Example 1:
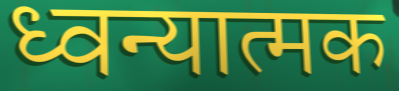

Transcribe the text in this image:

ध्वन्यात्मक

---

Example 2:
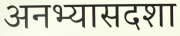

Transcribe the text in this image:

अनभ्यासदशा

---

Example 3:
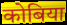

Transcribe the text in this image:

कोबिया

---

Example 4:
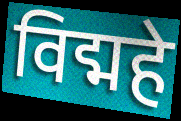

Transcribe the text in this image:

विद्महे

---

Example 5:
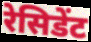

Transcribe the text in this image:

रेसिडेंट